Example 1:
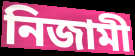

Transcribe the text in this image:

নিজামী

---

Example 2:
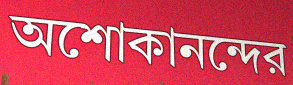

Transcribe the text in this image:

অশোকানন্দের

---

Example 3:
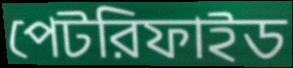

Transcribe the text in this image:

পেটরিফাইড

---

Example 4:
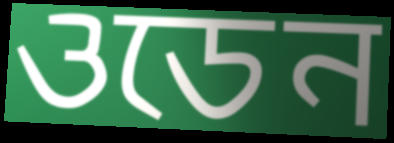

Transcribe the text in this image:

ওডেন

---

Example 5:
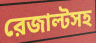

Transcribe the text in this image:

রেজাল্টসহ